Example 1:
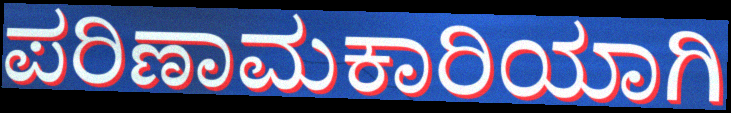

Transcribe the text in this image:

ಪರಿಣಾಮಕಾರಿಯಾಗಿ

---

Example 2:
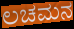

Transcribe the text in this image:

ಲಚಮನ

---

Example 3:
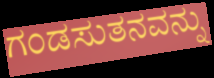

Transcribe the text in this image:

ಗಂಡಸುತನವನ್ನು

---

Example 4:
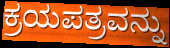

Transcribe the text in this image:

ಕ್ರಯಪತ್ರವನ್ನು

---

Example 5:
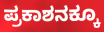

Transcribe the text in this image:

ಪ್ರಕಾಶನಕ್ಕೂ